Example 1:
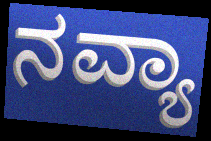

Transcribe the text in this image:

ನವ್ಯಾ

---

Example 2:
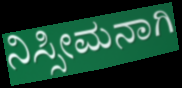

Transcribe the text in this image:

ನಿಸ್ಸೀಮನಾಗಿ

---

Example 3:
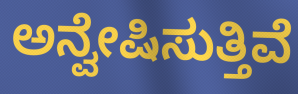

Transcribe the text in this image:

ಅನ್ವೇಷಿಸುತ್ತಿವೆ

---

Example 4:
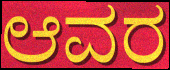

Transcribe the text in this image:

ಆವರ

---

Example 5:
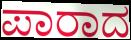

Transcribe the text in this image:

ಪಾರಾದ